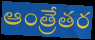
ఆంత్రేతర